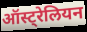
ऑस्ट्रेलियन